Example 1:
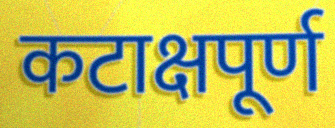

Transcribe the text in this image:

कटाक्षपूर्ण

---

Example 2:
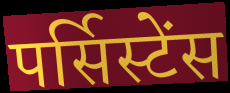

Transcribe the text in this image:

पर्सिस्टेंस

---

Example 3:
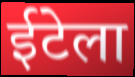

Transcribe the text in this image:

ईटेला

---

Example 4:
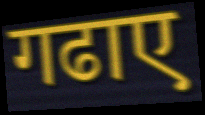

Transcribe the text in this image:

गढाए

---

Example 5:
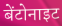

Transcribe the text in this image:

बेंटोनाइट